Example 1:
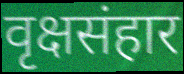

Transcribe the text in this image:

वृक्षसंहार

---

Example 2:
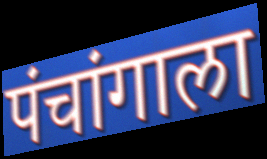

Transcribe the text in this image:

पंचांगाला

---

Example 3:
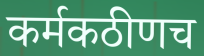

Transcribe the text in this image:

कर्मकठीणच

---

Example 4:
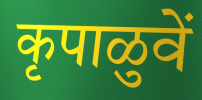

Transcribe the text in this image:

कृपाळुवें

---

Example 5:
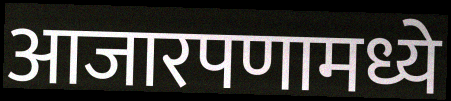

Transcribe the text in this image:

आजारपणामध्ये